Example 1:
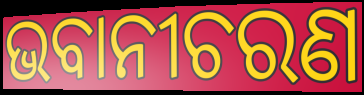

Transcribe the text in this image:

ଭବାନୀଚରଣ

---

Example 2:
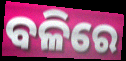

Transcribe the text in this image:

ବଳିରେ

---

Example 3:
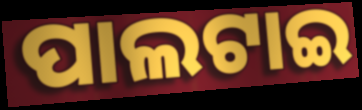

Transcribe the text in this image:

ପାଲଟାଇ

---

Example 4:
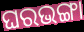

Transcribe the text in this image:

ଘରଭଙ୍ଗା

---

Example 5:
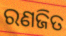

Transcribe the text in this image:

ରଣଜିତ